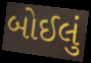
બોઈલું